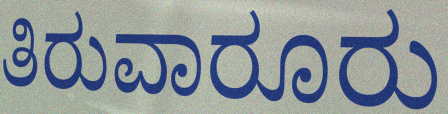
ತಿರುವಾರೂರು